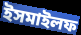
ইসমাইলফ